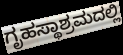
ಗೃಹಸ್ಥಾಶ್ರಮದಲ್ಲಿ